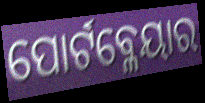
ପୋର୍ଟବ୍ଳେୟାର